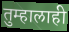
तुम्हालाही